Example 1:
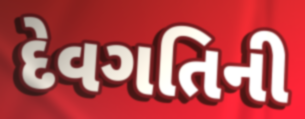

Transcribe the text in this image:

દેવગતિની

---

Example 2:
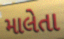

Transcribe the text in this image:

માલેતા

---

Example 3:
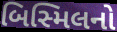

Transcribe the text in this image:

બિસ્મિલનો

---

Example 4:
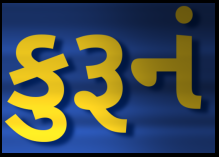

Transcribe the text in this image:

કુરૂનં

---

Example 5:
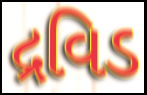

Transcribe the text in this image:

દ્રવિડ